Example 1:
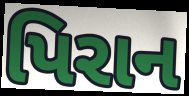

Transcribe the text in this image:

પિરાન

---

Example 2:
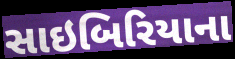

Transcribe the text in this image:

સાઇબિરિયાના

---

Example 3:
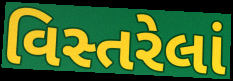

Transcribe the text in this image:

વિસ્તરેલાં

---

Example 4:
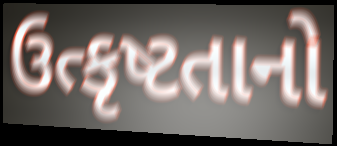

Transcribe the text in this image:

ઉત્કૃષ્ટતાનો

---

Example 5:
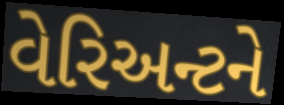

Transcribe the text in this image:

વેરિઅન્ટને